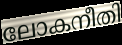
ലോകനീതി